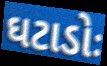
ઘટાડોઃ